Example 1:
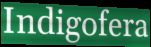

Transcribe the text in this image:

Indigofera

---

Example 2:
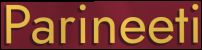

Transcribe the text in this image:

Parineeti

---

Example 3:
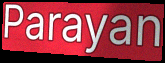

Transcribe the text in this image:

Parayan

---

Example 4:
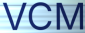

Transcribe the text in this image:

VCM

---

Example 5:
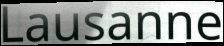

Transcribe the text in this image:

Lausanne